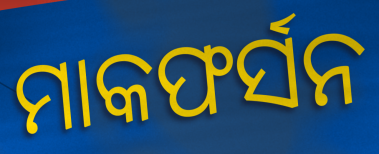
ମାକଫର୍ସନ